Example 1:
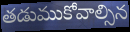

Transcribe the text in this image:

తడుముకోవాల్సిన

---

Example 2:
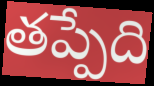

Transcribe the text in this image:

తప్పేది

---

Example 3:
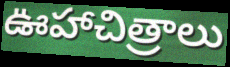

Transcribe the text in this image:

ఊహాచిత్రాలు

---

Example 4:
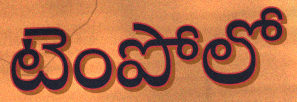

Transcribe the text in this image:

టెంపోలో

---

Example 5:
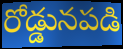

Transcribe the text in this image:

రోడ్డునపడి